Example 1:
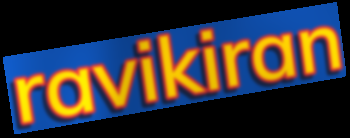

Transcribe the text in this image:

ravikiran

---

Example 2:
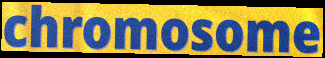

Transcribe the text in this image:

chromosome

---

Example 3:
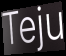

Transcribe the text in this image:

Teju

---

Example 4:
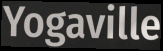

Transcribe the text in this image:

Yogaville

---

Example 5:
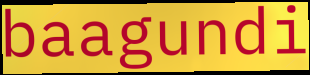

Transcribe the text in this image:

baagundi